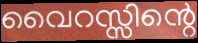
വൈറസ്സിന്റെ